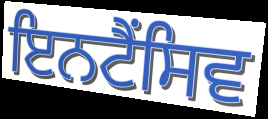
ਇਨਟੈਂਸਿਵ